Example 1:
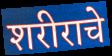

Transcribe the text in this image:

शरीराचे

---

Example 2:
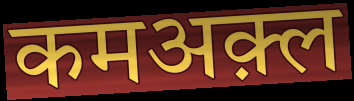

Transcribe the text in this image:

कमअक़्ल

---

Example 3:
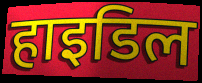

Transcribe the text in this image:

हाइडिल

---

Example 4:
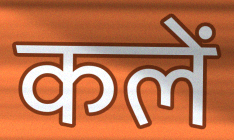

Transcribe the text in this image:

कलें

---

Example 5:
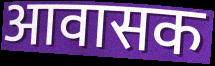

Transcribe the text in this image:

आवासक